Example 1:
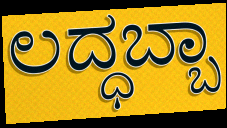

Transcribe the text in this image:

ಲದ್ಧಬ್ಬಾ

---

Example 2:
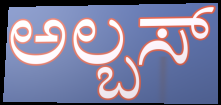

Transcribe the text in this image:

ಅಲ್ಬಸ್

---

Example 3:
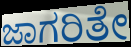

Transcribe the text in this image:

ಜಾಗರಿತೇ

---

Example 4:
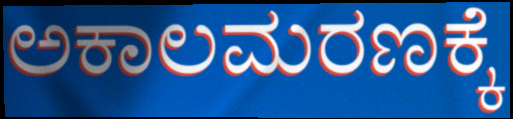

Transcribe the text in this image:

ಅಕಾಲಮರಣಕ್ಕೆ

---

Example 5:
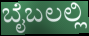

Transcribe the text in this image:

ಬೈಬಲಲ್ಲಿ